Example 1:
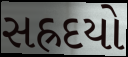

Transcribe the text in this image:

સહ્રદયો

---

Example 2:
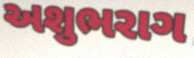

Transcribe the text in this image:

અશુભરાગ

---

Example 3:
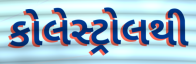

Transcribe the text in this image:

કોલેસ્ટ્રોલથી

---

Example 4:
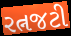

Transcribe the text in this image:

રત્નજટી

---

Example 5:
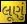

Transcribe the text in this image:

લૂણું